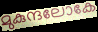
മുകുന്ദലോകേ